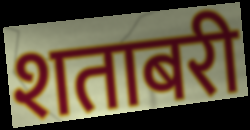
शताबरी